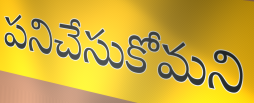
పనిచేసుకోమని